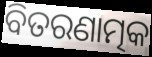
ବିତରଣାତ୍ମକ